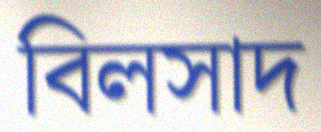
বিলসাদ